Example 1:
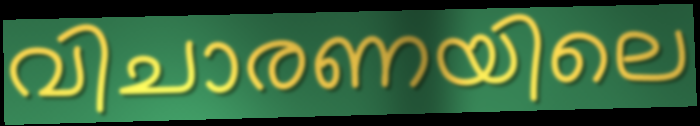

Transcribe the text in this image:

വിചാരണയിലെ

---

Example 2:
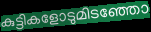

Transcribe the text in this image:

കുട്ടികളോടുമിടഞ്ഞോ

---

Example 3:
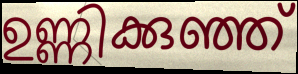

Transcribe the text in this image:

ഉണ്ണിക്കുഞ്ഞ്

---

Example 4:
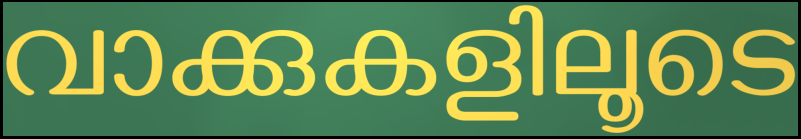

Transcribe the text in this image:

വാക്കുകളിലൂടെ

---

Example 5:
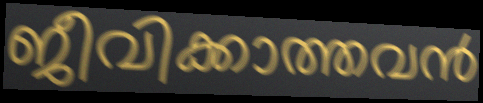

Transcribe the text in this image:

ജീവിക്കാത്തവൻ